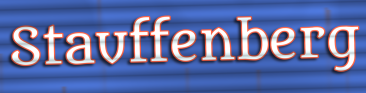
Stauffenberg